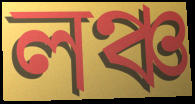
লঞ্চ